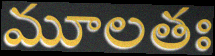
మూలతః